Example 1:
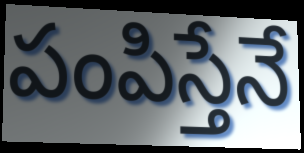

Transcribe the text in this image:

పంపిస్తేనే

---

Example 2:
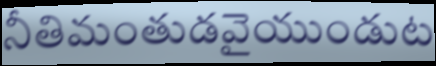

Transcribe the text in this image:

నీతిమంతుడవైయుండుట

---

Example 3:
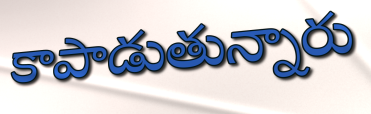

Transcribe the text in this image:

కాపాడుతున్నారు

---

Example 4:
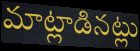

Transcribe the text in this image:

మాట్లాడినట్లు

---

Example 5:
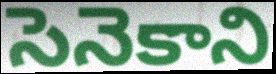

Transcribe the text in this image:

సెనెకాని